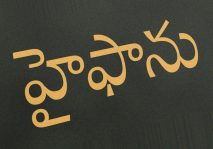
హైఫాను